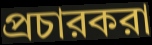
প্রচারকরা